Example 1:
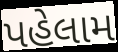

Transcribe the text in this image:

પહેલામ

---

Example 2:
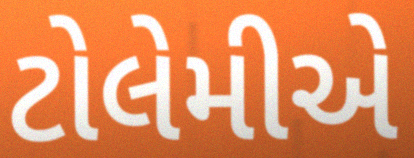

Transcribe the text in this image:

ટોલેમીએ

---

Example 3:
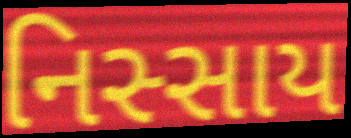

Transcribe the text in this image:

નિસ્સાય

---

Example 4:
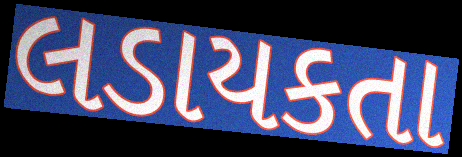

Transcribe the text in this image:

લડાયકતા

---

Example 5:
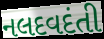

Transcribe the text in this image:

નલદવદંતી